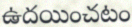
ఉదయించటం